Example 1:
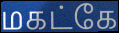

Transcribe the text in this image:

மகட்கே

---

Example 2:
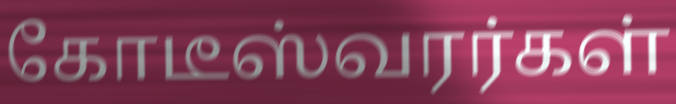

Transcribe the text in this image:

கோடீஸ்வரர்கள்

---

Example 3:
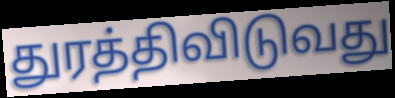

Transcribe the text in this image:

துரத்திவிடுவது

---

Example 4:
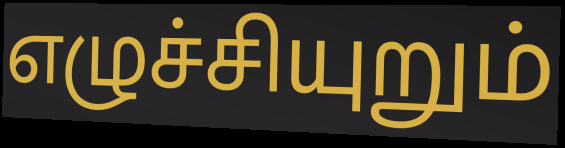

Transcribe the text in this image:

எழுச்சியுறும்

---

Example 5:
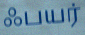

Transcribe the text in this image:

ஃபயர்